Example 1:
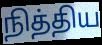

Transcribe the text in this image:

நித்திய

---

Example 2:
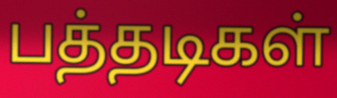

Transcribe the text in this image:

பத்தடிகள்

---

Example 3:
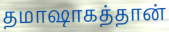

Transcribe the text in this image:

தமாஷாகத்தான்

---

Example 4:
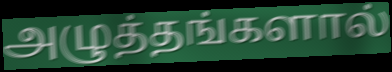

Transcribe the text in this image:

அழுத்தங்களால்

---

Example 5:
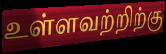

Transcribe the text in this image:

உள்ளவற்றிற்கு